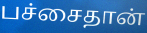
பச்சைதான்